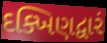
દક્ખિણદ્વારં